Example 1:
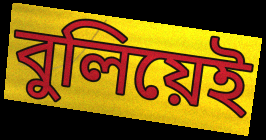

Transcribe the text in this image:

বুলিয়েই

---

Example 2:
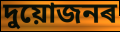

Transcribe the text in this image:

দুয়োজনৰ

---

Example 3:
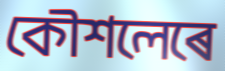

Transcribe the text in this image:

কৌশলেৰে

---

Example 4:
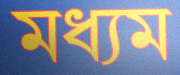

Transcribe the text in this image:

মধ্যম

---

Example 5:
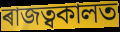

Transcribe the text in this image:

ৰাজত্বকালত